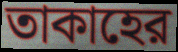
তাকাহের